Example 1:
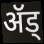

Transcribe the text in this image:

ॲड्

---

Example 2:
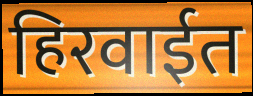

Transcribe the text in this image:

हिरवाईत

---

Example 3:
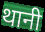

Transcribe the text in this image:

थानी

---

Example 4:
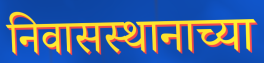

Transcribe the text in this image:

निवासस्थानाच्या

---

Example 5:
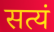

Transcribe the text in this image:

सत्यं